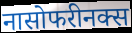
नासोफरीनक्स